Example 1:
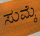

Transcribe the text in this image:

ಸುಮ್ಕೆ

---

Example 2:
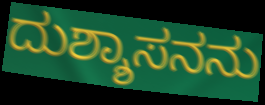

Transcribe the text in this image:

ದುಶ್ಶಾಸನನು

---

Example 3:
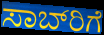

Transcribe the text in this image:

ಸಾಬ್‌ರಿಗೆ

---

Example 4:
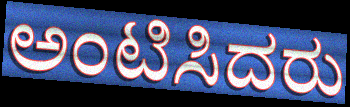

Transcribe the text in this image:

ಅಂಟಿಸಿದರು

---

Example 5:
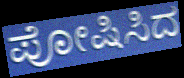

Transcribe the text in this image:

ಪೋಷಿಸಿದ